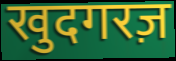
खुदगरज़